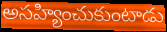
అసహ్యించుకుంటాడు